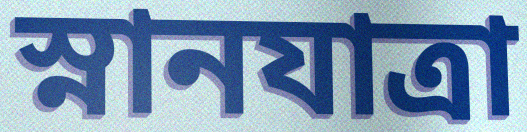
স্নানযাত্রা